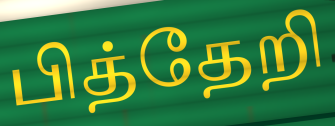
பித்தேறி